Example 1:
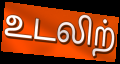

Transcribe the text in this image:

உடலிற்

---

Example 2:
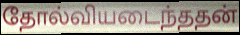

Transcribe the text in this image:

தோல்வியடைந்ததன்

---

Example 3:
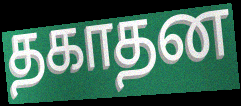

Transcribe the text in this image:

தகாதன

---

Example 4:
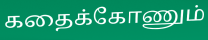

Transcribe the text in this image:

கதைக்கோணும்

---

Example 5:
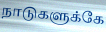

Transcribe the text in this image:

நாடுகளுக்கே